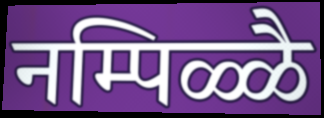
नम्पिळ्ळै